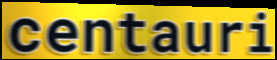
centauri